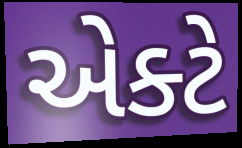
એક્ટે